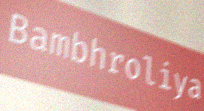
Bambhroliya